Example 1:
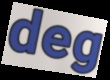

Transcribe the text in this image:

deg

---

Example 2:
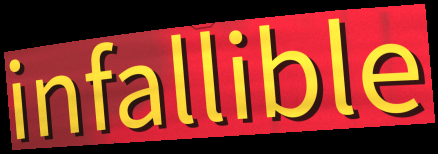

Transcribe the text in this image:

infallible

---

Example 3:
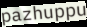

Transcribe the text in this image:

pazhuppu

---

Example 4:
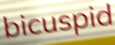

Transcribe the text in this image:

bicuspid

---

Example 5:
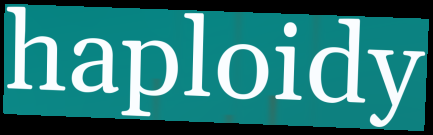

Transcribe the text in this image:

haploidy